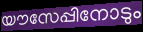
യൗസേപ്പിനോടും